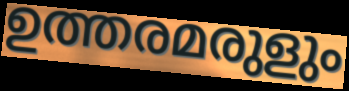
ഉത്തരമരുളും